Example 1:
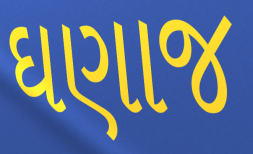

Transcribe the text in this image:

ઘણાજ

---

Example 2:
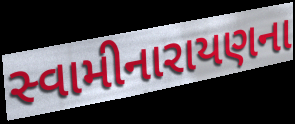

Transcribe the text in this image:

સ્વામીનારાયણના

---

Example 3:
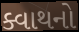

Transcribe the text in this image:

ક્વાથનો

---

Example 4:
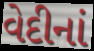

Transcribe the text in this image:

વેદીનાં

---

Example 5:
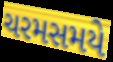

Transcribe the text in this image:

ચરમસમયે